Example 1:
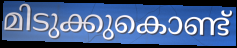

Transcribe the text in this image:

മിടുക്കുകൊണ്ട്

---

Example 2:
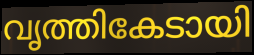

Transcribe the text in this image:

വൃത്തികേടായി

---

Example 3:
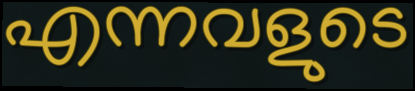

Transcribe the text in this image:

എന്നവളുടെ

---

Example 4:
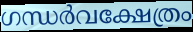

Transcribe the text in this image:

ഗന്ധർവക്ഷേത്രം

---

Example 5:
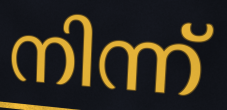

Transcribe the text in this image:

നിന്ന്